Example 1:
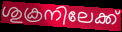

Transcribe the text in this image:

ശുക്രനിലേക്ക്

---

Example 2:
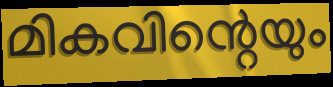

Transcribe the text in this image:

മികവിന്റെയും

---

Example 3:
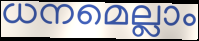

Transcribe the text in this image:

ധനമെല്ലാം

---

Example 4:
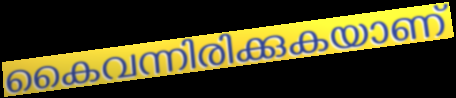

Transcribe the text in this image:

കൈവന്നിരിക്കുകയാണ്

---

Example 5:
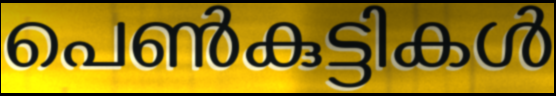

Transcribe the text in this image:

പെൺകുട്ടികൾ